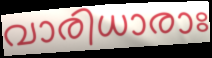
വാരിധാരാഃ